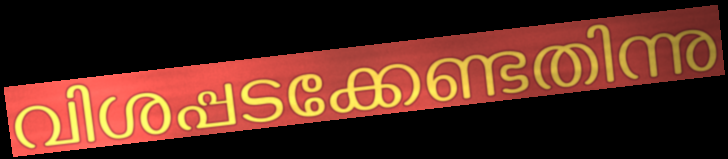
വിശപ്പടക്കേണ്ടതിന്നു